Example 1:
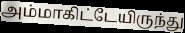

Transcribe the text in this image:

அம்மாகிட்டேயிருந்து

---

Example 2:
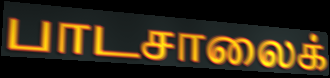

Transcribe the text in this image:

பாடசாலைக்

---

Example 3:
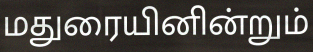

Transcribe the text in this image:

மதுரையினின்றும்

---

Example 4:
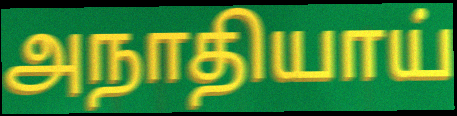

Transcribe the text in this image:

அநாதியாய்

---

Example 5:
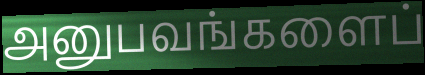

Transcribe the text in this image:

அனுபவங்களைப்